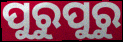
ପୁରୁପୁରୁ